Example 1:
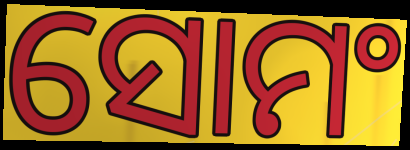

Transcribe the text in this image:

ସୋମଂ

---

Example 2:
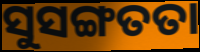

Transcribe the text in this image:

ସୁସଙ୍ଗତତା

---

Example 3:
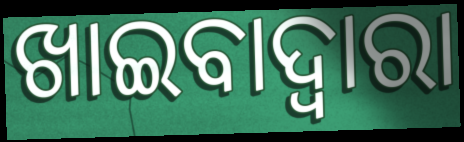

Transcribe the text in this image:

ଖାଇବାଦ୍ୱାରା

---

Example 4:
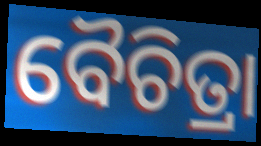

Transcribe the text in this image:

ବୈଚିତ୍ରା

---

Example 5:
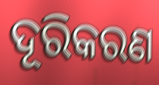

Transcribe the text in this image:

ଦୂରିକରଣ